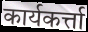
कार्यकर्त्ता